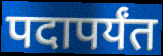
पदापर्यंत